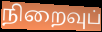
நிறைவுப்